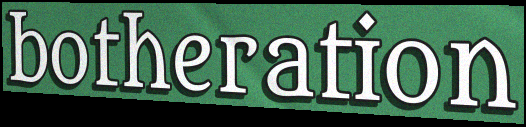
botheration